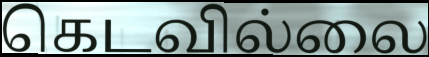
கெடவில்லை